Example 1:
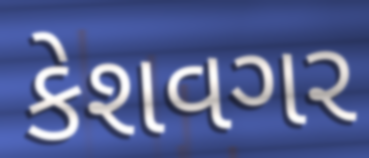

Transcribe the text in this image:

કેશવગર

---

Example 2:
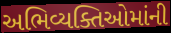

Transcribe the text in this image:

અભિવ્યક્તિઓમાંની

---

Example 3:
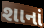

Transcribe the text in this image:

શાનાં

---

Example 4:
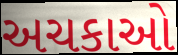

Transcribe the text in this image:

અચકાઓ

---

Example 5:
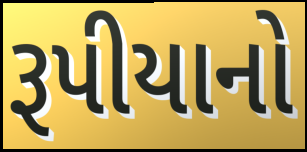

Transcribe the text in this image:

રૂપીયાનો